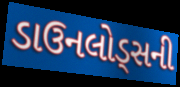
ડાઉનલોડ્સની